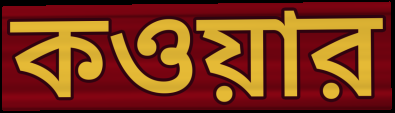
কওয়ার